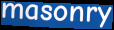
masonry